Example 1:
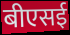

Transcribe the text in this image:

बीएसई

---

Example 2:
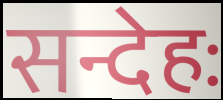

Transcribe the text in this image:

सन्देहः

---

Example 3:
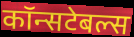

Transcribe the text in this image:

कॉन्सटेबल्स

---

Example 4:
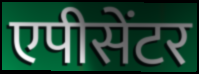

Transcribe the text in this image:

एपीसेंटर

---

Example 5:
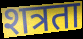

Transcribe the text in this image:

शत्रता